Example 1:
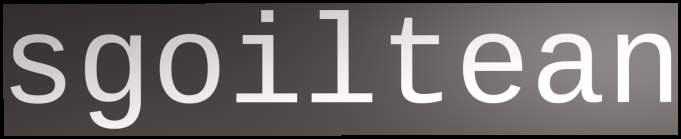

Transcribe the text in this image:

sgoiltean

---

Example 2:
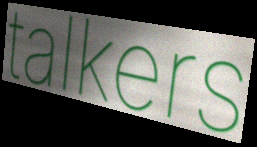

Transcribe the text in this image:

talkers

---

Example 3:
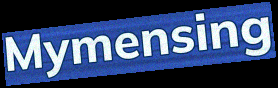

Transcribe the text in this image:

Mymensing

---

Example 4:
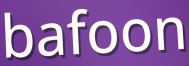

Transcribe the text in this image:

bafoon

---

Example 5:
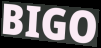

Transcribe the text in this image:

BIGO